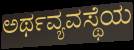
ಅರ್ಥವ್ಯವಸ್ಥೆಯ